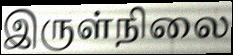
இருள்நிலை